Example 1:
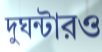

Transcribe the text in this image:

দুঘন্টারও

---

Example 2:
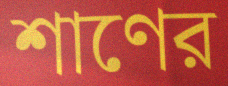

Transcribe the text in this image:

শাণের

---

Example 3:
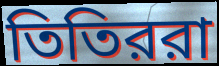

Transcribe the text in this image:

তিতিররা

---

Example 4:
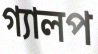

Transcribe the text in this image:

গ্যালপ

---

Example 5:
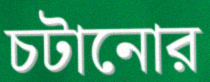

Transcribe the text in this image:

চটানোর